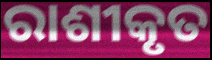
ରାଶୀକୃତ